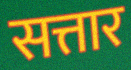
सत्तार